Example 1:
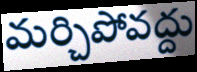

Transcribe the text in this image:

మర్చిపోవద్దు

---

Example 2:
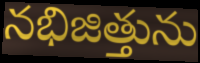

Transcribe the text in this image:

నభిజిత్తును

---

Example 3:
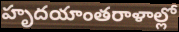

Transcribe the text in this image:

హృదయాంతరాళాల్లో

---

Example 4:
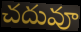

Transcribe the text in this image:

చదువూ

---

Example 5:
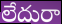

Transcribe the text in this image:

లేదురా